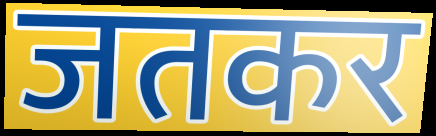
जतकर